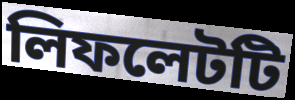
লিফলেটটি